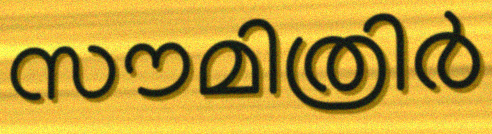
സൗമിത്രിർ